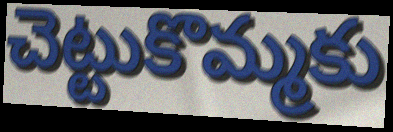
చెట్టుకొమ్మకు